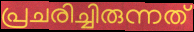
പ്രചരിച്ചിരുന്നത്